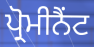
ਪ੍ਰੋਮੀਨੈਂਟ